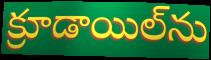
క్రూడాయిల్‌ను